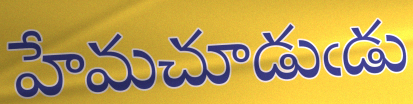
హేమచూడుఁడు